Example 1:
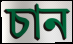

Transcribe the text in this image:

চান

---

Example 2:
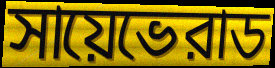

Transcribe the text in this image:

সায়েভেরাড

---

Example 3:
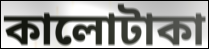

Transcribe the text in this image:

কালোটাকা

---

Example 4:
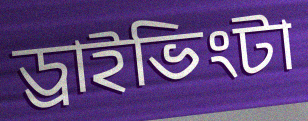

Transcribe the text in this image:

ড্রাইভিংটা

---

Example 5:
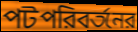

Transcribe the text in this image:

পটপরিবর্তনের